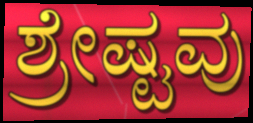
ಶ್ರೇಷ್ಟವು